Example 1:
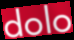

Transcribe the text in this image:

dolo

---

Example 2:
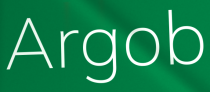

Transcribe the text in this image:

Argob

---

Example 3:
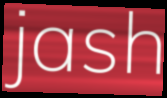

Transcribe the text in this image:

jash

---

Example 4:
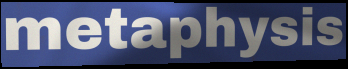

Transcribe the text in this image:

metaphysis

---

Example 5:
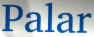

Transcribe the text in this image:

Palar